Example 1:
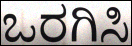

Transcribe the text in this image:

ಒರಗಿಸಿ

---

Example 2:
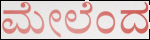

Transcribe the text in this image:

ಮೇಲೆಂದ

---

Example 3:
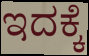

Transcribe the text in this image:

ಇದಕ್ಕೆ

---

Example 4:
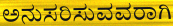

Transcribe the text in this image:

ಅನುಸರಿಸುವವರಾಗಿ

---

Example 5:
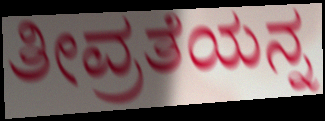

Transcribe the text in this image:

ತೀವ್ರತೆಯನ್ನ